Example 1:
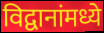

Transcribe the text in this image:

विद्वानांमध्ये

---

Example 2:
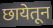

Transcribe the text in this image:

छायेतून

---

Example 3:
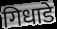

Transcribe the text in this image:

गिधाडे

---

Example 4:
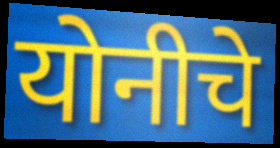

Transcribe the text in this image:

योनीचे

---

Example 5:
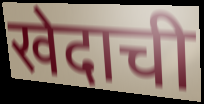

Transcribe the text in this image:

खेदाची